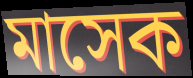
মাসেক